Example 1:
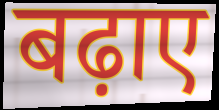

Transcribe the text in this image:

बढ़ाए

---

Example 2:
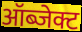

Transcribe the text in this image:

ऑब्जेक्ट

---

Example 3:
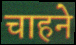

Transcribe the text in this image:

चाहने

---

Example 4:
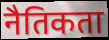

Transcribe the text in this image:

नैतिकता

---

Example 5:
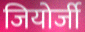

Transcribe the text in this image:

जियोर्जी